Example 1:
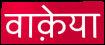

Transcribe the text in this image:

वाक़ेया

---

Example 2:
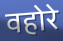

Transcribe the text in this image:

वहोरे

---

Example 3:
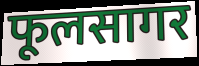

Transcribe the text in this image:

फूलसागर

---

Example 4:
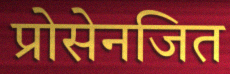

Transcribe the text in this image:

प्रोसेनजित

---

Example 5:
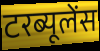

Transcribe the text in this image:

टरब्यूलेंस